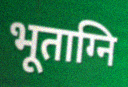
भूताग्नि